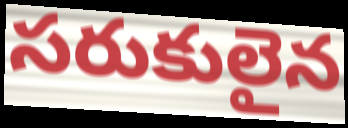
సరుకులైన